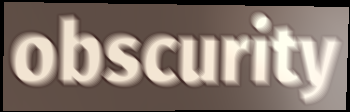
obscurity